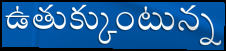
ఉతుక్కుంటున్న